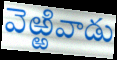
వెఱ్ఱివాడు